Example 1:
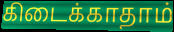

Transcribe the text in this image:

கிடைக்காதாம்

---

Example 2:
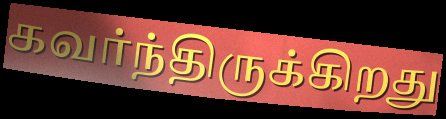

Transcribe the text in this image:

கவர்ந்திருக்கிறது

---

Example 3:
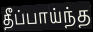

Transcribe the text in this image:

தீப்பாய்ந்த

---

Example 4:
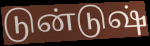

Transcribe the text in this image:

டுன்டுஷ்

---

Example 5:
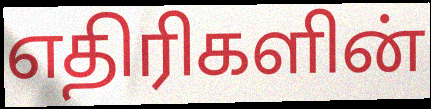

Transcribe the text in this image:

எதிரிகளின்